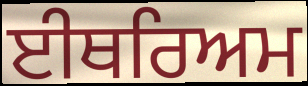
ਈਥਰਿਅਮ